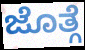
ಜೊತ್ಗೆ